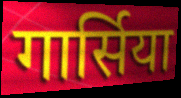
गार्सिया